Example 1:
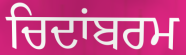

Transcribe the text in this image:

ਚਿਦਾਂਬਰਮ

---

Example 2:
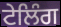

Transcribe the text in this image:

ਟੇਲਿੰਗ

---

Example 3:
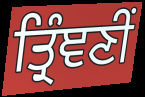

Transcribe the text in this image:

ਤ੍ਰਿੰਞਣੀਂ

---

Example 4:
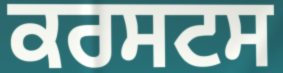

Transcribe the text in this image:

ਕਰਸਟਸ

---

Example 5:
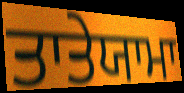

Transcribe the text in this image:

ਤਾਤੇਯਾਮਾ